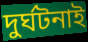
দুর্ঘটনাই